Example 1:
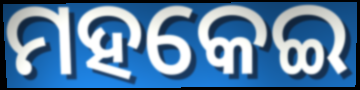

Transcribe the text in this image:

ମହକେଇ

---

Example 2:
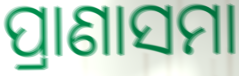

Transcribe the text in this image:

ପ୍ରାଣାସମା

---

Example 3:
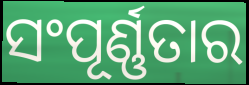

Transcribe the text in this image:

ସଂପୂର୍ଣ୍ଣତାର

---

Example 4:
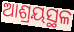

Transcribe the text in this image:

ଆଶ୍ରୟସ୍ଥଳ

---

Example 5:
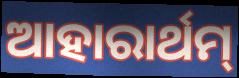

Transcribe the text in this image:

ଆହାରାର୍ଥମ୍